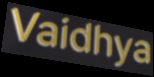
Vaidhya